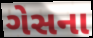
ગેસના